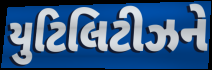
યુટિલિટીઝને